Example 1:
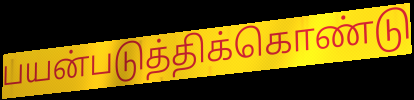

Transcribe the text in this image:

பயன்படுத்திக்கொண்டு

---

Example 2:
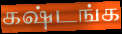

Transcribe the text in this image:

கஷ்டங்க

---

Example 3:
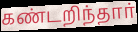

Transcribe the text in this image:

கண்டறிந்தார்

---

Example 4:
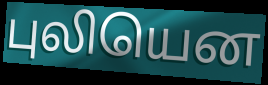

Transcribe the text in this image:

புலியென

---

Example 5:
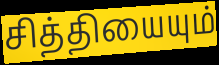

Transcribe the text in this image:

சித்தியையும்